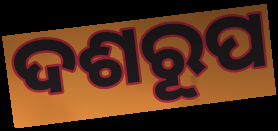
ଦଶରୂପ